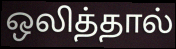
ஒலித்தால்